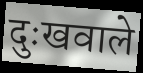
दुःखवाले